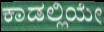
ಕಾಡಲ್ಲಿಯೇ